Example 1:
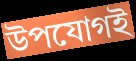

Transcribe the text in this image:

উপযোগই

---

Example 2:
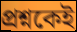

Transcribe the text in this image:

প্রশ্নকেই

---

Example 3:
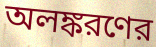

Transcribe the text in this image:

অলঙ্করণের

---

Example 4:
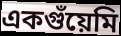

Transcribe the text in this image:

একগুঁয়েমি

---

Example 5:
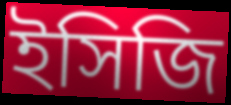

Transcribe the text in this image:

ইসিজি